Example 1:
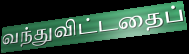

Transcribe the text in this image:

வந்துவிட்டதைப்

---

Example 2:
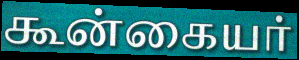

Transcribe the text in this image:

கூன்கையர்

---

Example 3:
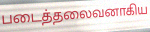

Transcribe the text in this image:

படைத்தலைவனாகிய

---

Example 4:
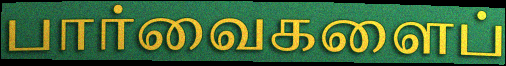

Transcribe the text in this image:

பார்வைகளைப்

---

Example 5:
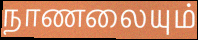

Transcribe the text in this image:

நாணலையும்